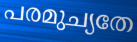
പരമുച്യതേ